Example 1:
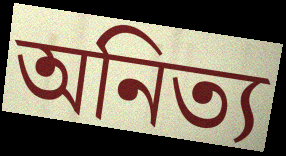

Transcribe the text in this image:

অনিত্য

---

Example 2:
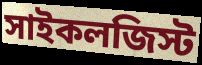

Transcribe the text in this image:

সাইকলজিস্ট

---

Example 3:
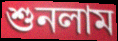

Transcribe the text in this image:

শুনলাম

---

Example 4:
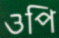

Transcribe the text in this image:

ওপি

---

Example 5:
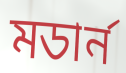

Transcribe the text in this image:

মডার্ন